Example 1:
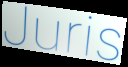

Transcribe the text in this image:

Juris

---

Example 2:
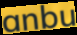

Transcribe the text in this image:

anbu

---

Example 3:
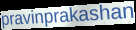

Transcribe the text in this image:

pravinprakashan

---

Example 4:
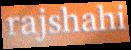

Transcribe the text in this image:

rajshahi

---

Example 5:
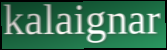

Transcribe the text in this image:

kalaignar